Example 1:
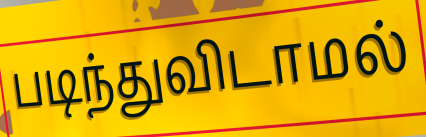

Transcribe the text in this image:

படிந்துவிடாமல்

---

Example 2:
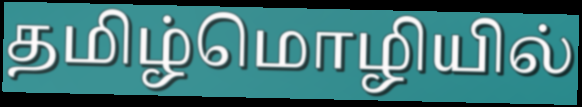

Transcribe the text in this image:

தமிழ்மொழியில்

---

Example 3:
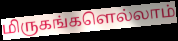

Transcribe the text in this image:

மிருகங்களெல்லாம்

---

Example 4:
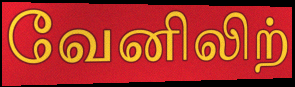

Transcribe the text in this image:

வேனிலிற்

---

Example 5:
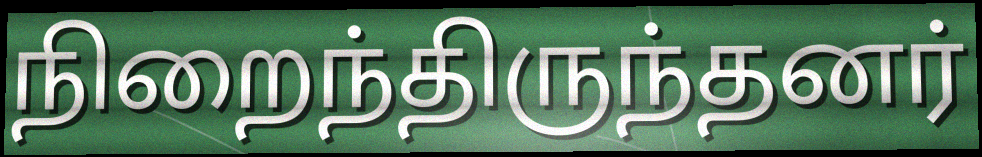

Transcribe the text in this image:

நிறைந்திருந்தனர்